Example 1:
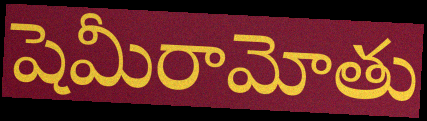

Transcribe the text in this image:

షెమీరామోతు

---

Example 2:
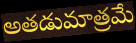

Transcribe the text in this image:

అతడుమాత్రమే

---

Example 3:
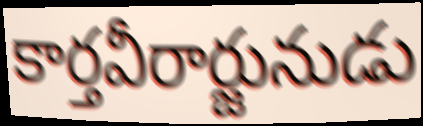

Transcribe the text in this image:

కార్తవీరార్జునుడు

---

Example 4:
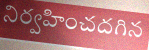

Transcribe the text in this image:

నిర్వహించదగిన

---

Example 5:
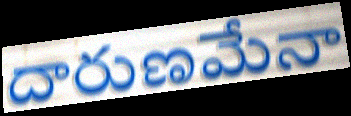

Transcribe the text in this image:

దారుణమేనా